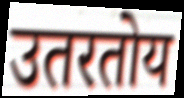
उतरतोय